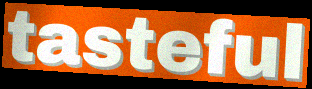
tasteful